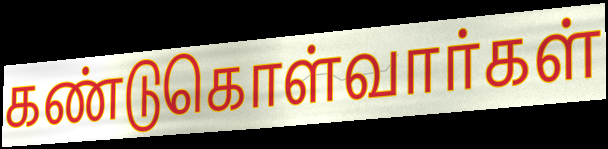
கண்டுகொள்வார்கள்